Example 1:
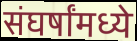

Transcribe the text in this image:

संघर्षांमध्ये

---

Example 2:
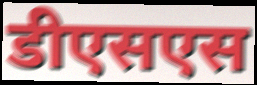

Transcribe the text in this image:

डीएसएस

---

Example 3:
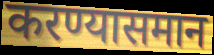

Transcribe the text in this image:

करण्यासमान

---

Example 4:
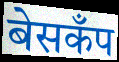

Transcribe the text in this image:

बेसकँप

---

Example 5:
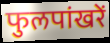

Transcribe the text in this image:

फुलपांखरें